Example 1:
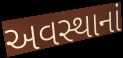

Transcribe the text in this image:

અવસ્થાનાં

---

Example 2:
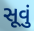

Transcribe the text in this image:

સૂવું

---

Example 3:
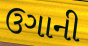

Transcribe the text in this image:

ઉગાની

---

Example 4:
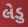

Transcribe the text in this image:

લેડુ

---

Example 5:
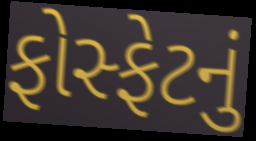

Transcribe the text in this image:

ફોસ્ફેટનું